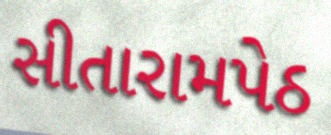
સીતારામપેઠ